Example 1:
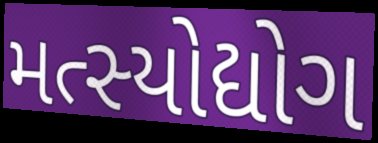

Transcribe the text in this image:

મત્સ્યોદ્યોગ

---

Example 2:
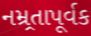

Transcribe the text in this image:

નમ્ર્રતાપૂર્વક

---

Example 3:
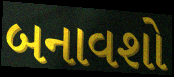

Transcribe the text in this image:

બનાવશો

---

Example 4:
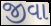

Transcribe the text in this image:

જીવા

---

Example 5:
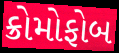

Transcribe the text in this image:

ક્રોમોફોબ